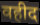
वहीद